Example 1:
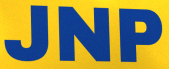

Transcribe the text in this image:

JNP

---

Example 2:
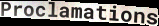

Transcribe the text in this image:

Proclamations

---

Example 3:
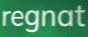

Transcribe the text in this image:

regnat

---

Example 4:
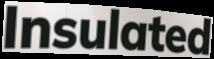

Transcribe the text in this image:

Insulated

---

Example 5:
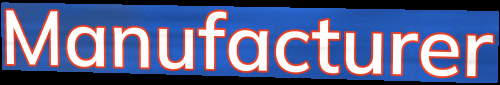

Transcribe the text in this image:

Manufacturer